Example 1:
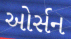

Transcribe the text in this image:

ઓર્સન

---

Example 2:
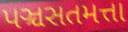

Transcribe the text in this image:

પઞ્ચસતમત્તા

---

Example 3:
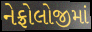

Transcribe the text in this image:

નેફ્રોલોજીમાં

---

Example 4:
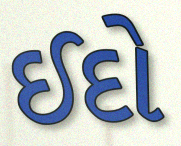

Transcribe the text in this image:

ઈદો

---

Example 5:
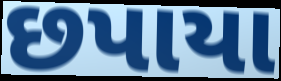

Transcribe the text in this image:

છપાયા